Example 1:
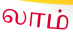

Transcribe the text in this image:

லாம்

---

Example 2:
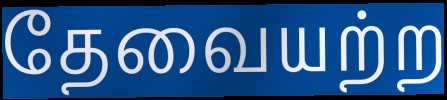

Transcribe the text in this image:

தேவையற்ற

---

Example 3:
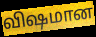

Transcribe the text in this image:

விஷமான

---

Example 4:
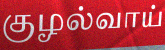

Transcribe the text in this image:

குழல்வாய்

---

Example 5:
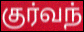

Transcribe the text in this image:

குர்வந்